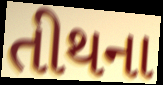
તીથના